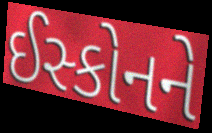
ઈસ્કોનને